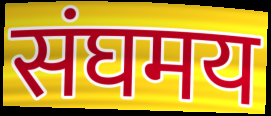
संघमय